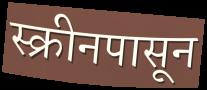
स्क्रीनपासून